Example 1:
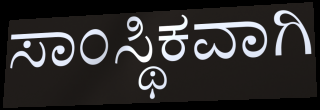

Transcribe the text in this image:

ಸಾಂಸ್ಥಿಕವಾಗಿ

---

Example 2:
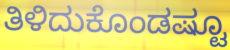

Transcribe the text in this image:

ತಿಳಿದುಕೊಂಡಷ್ಟೂ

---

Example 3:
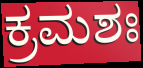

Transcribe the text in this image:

ಕ್ರಮಶಃ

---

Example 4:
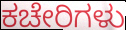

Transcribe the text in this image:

ಕಚೇರಿಗಳು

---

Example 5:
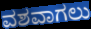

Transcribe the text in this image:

ವಶವಾಗಲು